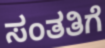
ಸಂತತಿಗೆ